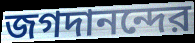
জগদানন্দের